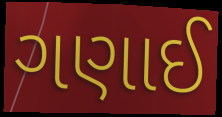
ગણાઈ